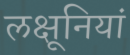
लक्षूनियां